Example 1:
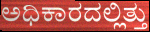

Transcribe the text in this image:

ಅಧಿಕಾರದಲ್ಲಿತ್ತು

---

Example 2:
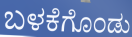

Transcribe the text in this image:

ಬಳಕೆಗೊಂಡು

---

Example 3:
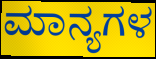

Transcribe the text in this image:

ಮಾನ್ಯಗಳ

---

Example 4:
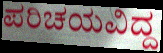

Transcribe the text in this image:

ಪರಿಚಯವಿದ್ದ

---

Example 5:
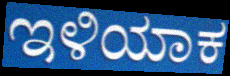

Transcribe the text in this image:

ಇಳಿಯಾಕ